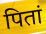
पितां